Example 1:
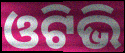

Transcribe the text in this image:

ଓଟିଭି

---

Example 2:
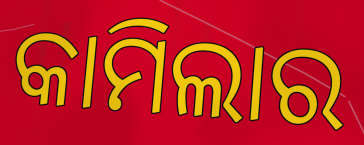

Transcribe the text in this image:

କାମିଲାର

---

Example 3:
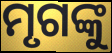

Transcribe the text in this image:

ମୃଗଙ୍କୁ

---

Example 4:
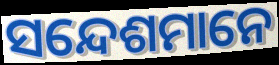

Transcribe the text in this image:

ସନ୍ଦେଶମାନେ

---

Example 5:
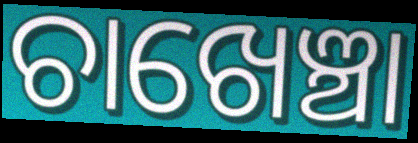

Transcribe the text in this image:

ଚାଖେଞ୍ଚା